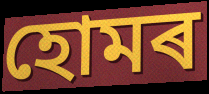
হোমৰ